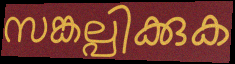
സങ്കല്പിക്കുക